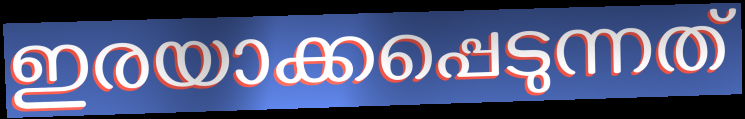
ഇരയാക്കപ്പെടുന്നത്